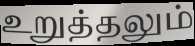
உறுத்தலும்